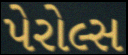
પેરોલ્સ